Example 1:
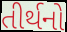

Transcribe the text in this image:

તીર્થનો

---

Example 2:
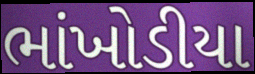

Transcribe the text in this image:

ભાંખોડીયા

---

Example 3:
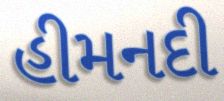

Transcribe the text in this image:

હીમનદી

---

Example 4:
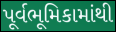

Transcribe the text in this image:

પૂર્વભૂમિકામાંથી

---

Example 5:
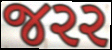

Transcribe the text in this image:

જરર